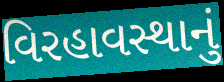
વિરહાવસ્થાનું